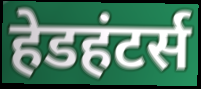
हेडहंटर्स